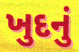
ખુદનું